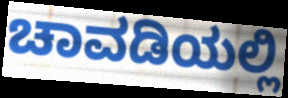
ಚಾವಡಿಯಲ್ಲಿ